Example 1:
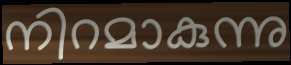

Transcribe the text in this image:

നിറമാകുന്നു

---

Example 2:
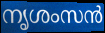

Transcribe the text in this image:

നൃശംസൻ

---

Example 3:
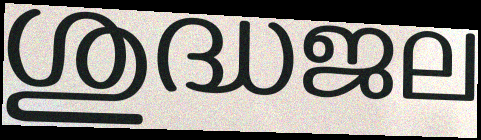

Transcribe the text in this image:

ശുദ്ധജല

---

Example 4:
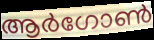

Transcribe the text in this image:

ആർഗോൺ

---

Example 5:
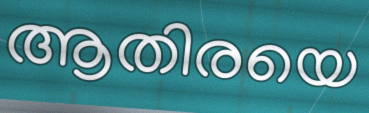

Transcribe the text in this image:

ആതിരയെ